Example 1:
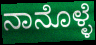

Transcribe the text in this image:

ನಾನೊಳ್ಳೆ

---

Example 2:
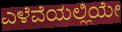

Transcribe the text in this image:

ಎಳೆವೆಯಲ್ಲಿಯೇ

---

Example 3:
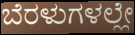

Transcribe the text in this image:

ಬೆರಳುಗಳಲ್ಲೇ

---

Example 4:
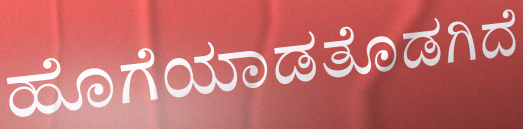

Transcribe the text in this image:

ಹೊಗೆಯಾಡತೊಡಗಿದೆ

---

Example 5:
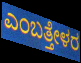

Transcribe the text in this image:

ಎಂಬತ್ತೇಳರ